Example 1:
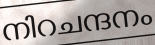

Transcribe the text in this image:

നിറചന്ദനം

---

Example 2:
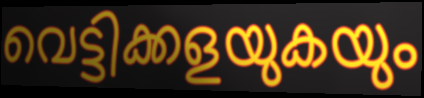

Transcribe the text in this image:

വെട്ടിക്കളയുകയും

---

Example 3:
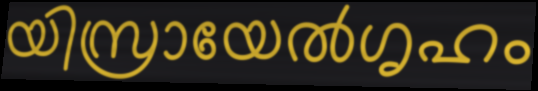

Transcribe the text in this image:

യിസ്രായേൽഗൃഹം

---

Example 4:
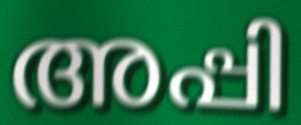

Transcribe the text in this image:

അപ്പി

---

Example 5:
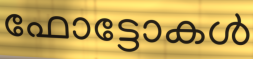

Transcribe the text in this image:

ഫോട്ടോകൾ